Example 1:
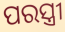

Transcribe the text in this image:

ପରସ୍ତ୍ରୀ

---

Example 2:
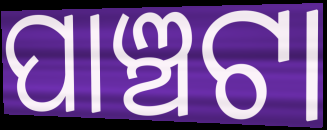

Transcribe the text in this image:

ପାଞ୍ଚଟା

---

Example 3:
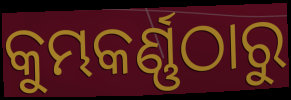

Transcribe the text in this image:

କୁମ୍ଭକର୍ଣ୍ଣଠାରୁ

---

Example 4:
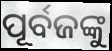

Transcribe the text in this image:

ପୂର୍ବଜଙ୍କୁ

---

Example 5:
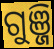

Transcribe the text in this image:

ଗୁଞ୍ଜି